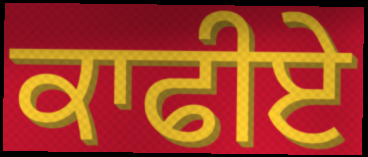
ਕਾਫੀਏ